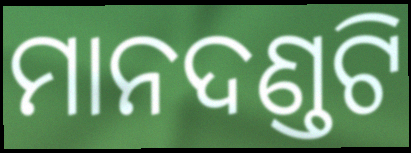
ମାନଦଣ୍ଡଟି